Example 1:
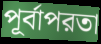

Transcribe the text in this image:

পূর্বাপরতা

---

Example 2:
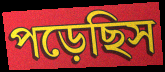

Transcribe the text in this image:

পড়েছিস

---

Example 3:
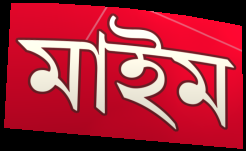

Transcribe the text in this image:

মাইম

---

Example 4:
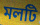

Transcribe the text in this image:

মলটি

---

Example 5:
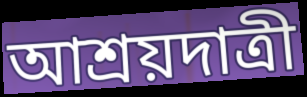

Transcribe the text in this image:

আশ্রয়দাত্রী